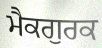
ਮੈਕਗੁਰਕ